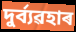
দুৰ্ব্যৱহাৰ